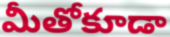
మీతోకూడా